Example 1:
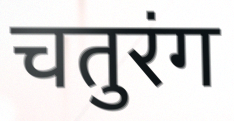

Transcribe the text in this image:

चतुरंग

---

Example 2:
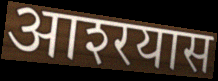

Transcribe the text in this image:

आश्रयास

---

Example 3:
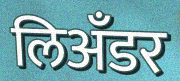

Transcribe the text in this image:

लिअँडर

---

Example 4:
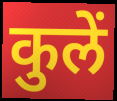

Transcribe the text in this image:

कुलें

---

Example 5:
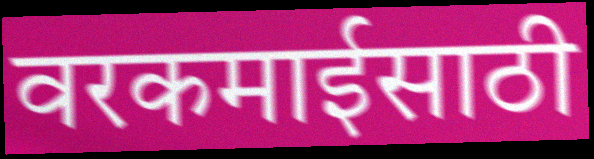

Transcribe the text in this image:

वरकमाईसाठी